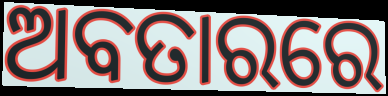
ଅବତାରରେ